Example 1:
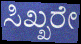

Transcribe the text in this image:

ಸಿಖ್ಖರೇ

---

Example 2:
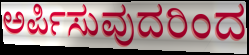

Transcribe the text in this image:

ಅರ್ಪಿಸುವುದರಿಂದ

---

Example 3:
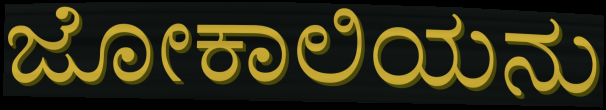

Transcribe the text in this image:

ಜೋಕಾಲಿಯನು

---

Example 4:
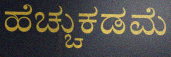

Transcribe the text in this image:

ಹೆಚ್ಚುಕಡಮೆ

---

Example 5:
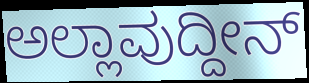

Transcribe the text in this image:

ಅಲ್ಲಾವುದ್ದೀನ್